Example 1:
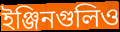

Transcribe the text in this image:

ইঞ্জিনগুলিও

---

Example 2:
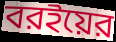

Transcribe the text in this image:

বরইয়ের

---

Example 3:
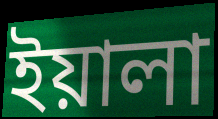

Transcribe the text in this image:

ইয়ালা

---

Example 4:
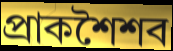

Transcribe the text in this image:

প্রাকশৈশব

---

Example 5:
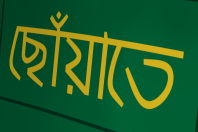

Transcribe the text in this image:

ছোঁয়াতে